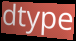
dtype